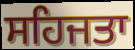
ਸਹਿਜਤਾ